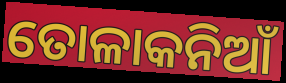
ତୋଳାକନିଆଁ